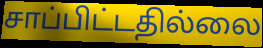
சாப்பிட்டதில்லை